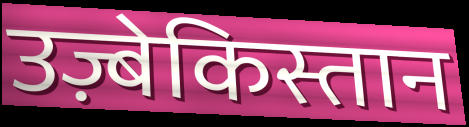
उज़्बेकिस्तान